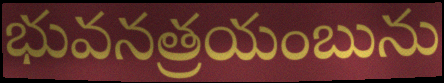
భువనత్రయంబును